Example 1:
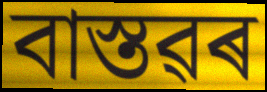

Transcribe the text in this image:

বাস্তৱৰ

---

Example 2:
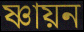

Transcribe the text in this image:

ষ্ণায়ন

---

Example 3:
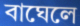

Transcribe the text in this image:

বাঘেলে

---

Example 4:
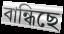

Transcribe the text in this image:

বান্ধিছে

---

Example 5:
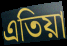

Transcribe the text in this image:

এতিয়া